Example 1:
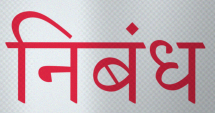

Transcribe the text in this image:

निबंध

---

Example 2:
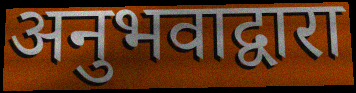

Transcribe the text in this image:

अनुभवाद्वारा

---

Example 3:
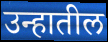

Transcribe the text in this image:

उन्हातील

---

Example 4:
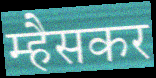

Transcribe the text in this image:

म्हैसकर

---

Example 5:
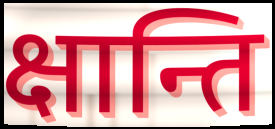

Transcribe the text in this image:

क्षान्ति